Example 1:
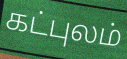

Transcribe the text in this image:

கட்புலம்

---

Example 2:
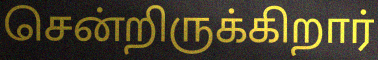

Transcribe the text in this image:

சென்றிருக்கிறார்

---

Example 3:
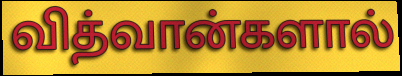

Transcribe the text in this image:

வித்வான்களால்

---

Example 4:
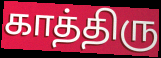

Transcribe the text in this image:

காத்திரு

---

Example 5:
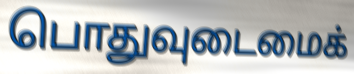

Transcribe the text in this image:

பொதுவுடைமைக்